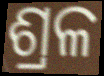
ଶ୍ରଳ